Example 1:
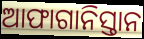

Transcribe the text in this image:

ଆଫାଗାନିସ୍ତାନ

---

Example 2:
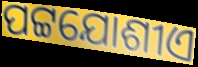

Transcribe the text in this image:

ପଟ୍ଟଯୋଶୀଏ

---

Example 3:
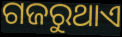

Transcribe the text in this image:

ଗଜରୁଥାଏ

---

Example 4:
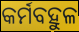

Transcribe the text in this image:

କର୍ମବହୁଳ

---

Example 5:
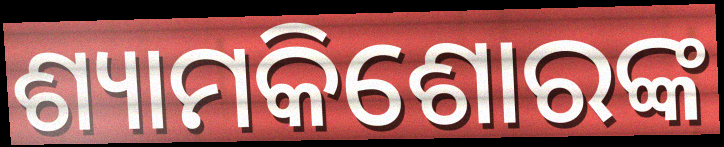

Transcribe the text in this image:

ଶ୍ୟାମକିଶୋରଙ୍କ